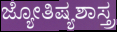
ಜ್ಯೋತಿಷ್ಯಶಾಸ್ತ್ರ